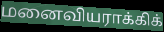
மனைவியராக்கிக்